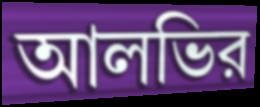
আলভির